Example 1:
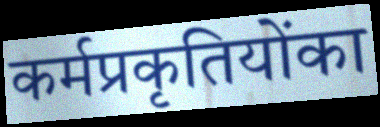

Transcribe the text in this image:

कर्मप्रकृतियोंका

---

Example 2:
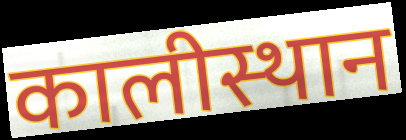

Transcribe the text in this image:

कालीस्थान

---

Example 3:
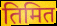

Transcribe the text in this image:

तिमित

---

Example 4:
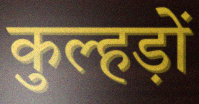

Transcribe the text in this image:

कुल्हड़ों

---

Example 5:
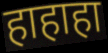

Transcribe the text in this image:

हाहाहा